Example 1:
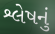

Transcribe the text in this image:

શ્લેષનું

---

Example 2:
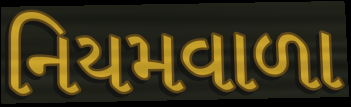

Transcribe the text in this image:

નિયમવાળા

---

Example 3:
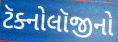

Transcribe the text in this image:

ટૅક્નોલૉજીનો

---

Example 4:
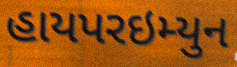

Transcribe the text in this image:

હાયપરઇમ્યુન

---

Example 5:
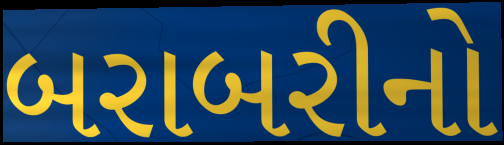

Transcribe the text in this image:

બરાબરીનો